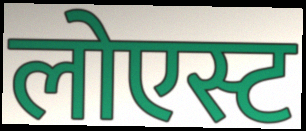
लोएस्ट